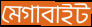
মেগাবাইট